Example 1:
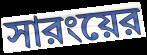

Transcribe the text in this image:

সারংয়ের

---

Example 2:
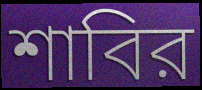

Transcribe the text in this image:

শাবির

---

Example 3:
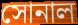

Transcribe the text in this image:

সোনাল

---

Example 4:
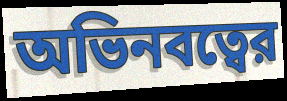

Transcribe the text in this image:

অভিনবত্বের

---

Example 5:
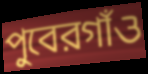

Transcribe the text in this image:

পুবেরগাঁও